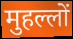
मुहल्लों